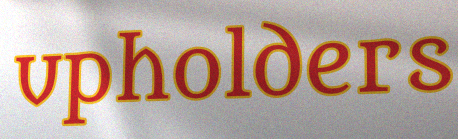
upholders